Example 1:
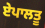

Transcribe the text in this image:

ਏਪਾਲਤੂ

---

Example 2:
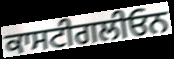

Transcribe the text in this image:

ਕਾਸਟੀਗਲੀਓਨ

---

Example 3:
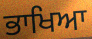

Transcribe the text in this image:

ਭਾਖਿਆ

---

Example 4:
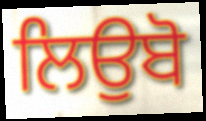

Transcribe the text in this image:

ਲਿਉਬੋ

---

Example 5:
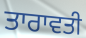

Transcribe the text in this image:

ਤਾਰਾਵਤੀ